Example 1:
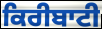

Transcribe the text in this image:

ਕਿਰੀਬਾਟੀ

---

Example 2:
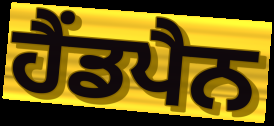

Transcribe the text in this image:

ਹੈਂਡਪੈਨ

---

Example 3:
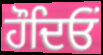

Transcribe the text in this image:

ਹੌਦਿਓਂ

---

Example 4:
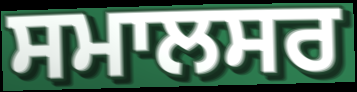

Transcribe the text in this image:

ਸਮਾਲਸਰ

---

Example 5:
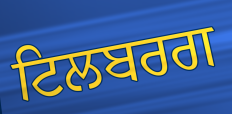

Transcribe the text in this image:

ਟਿਲਬਰਗ